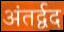
अंतर्द्वद